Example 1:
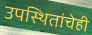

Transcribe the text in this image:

उपस्थितांचेही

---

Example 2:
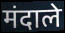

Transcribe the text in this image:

मंदाले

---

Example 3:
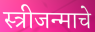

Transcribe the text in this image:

स्त्रीजन्माचे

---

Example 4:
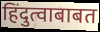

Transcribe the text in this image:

हिंदुत्वाबाबत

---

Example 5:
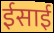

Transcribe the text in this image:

ईसाई